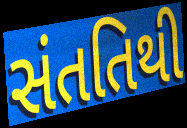
સંતતિથી